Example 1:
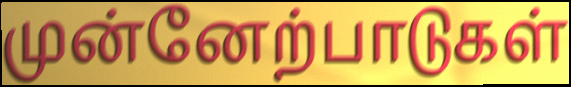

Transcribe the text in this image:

முன்னேற்பாடுகள்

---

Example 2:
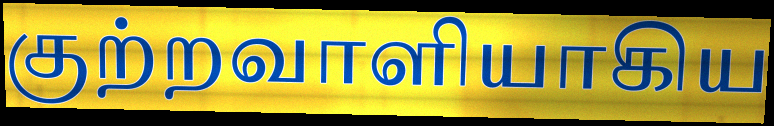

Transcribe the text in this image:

குற்றவாளியாகிய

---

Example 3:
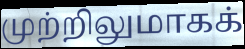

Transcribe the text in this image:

முற்றிலுமாகக்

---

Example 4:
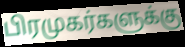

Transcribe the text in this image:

பிரமுகர்களுக்கு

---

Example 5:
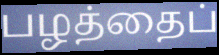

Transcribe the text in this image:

பழத்தைப்